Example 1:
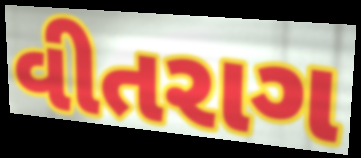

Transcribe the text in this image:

વીતરાગ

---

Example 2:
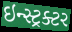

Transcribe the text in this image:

ઇન્સ્ટ્રક્ટર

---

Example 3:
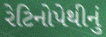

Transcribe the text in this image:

રેટિનોપેથીનું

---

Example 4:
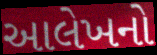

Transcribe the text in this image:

આલેખનો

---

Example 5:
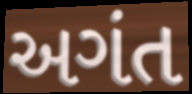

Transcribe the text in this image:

અગંત